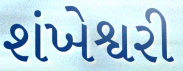
શંખેશ્વરી